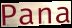
Pana